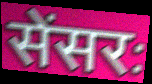
सेंसरः